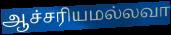
ஆச்சரியமல்லவா